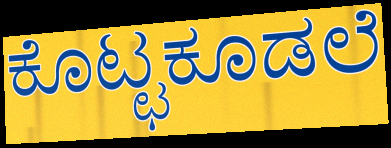
ಕೊಟ್ಟಕೂಡಲೆ